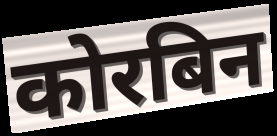
कोरबिन